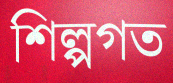
শিল্পগত